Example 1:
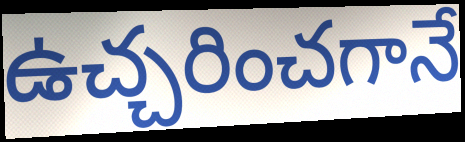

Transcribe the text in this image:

ఉచ్చరించగానే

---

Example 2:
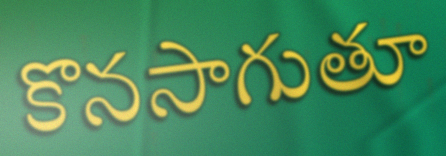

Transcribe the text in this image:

కొనసాగుతూ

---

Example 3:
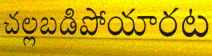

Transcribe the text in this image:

చల్లబడిపోయారట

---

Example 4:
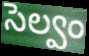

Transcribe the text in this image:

సెల్వం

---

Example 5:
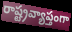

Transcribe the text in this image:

రాష్ట్రవ్యాప్తంగా